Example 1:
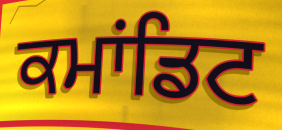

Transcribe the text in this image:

ਕਮਾਂਡਿਟ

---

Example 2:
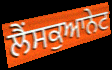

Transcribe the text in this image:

ਲੈਂਸਕੁਆਨੇਟ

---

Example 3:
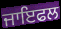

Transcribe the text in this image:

ਜਾਇਫਲ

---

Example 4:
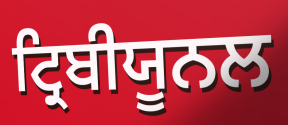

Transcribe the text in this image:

ਟ੍ਰਿਬੀਯੂਨਲ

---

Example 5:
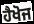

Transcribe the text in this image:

ਹੈਖੋਜ